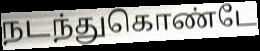
நடந்துகொண்டே